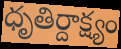
ధృతిర్దాక్ష్యం